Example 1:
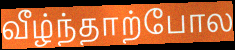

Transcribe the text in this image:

வீழ்ந்தாற்போல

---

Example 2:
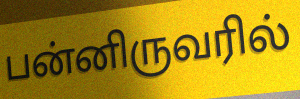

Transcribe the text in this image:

பன்னிருவரில்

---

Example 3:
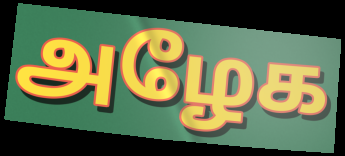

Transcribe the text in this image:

அழேக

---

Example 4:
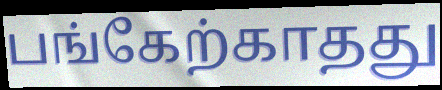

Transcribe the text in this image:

பங்கேற்காதது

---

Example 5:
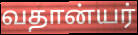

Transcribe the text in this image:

வதான்யர்